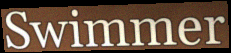
Swimmer